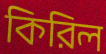
কিরিল